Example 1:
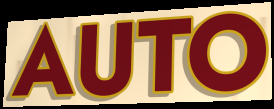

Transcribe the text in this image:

AUTO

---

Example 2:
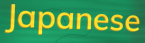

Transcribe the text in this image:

Japanese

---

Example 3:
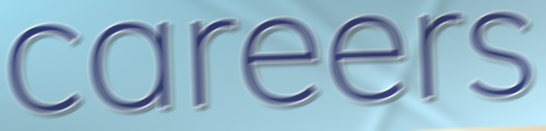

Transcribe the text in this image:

careers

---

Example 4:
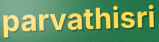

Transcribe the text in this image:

parvathisri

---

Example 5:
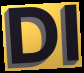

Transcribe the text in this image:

DI